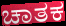
ಚಾತಕ